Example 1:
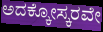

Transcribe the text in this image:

ಅದಕ್ಕೋಸ್ಕರವೇ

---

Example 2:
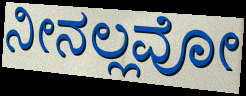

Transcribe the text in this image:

ನೀನಲ್ಲವೋ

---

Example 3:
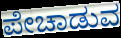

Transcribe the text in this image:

ಪೇಚಾಡುವ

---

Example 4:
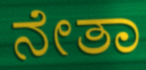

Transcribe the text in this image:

ನೇತಾ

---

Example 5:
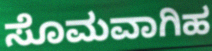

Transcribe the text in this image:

ಸೊಮವಾಗಿಹ